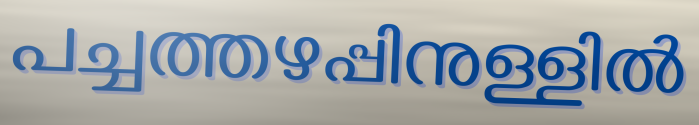
പച്ചത്തഴപ്പിനുള്ളിൽ